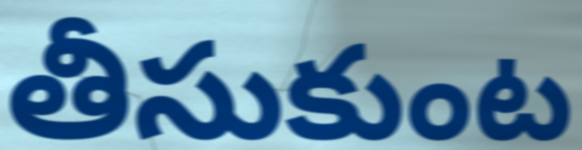
తీసుకుంట